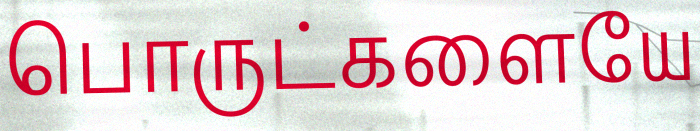
பொருட்களையே